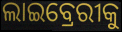
ଲାଇବ୍ରେରୀକୁ